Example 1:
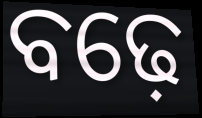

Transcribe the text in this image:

ବଢ଼େ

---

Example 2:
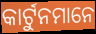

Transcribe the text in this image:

କାର୍ଟୁନମାନେ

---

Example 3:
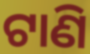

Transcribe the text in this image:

ଟାଣି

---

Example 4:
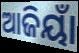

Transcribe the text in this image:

ଆଜିୟାଁ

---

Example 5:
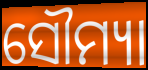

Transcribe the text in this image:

ସୌମ୍ୟା